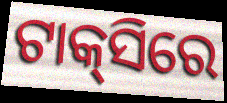
ଟାକ୍‌ସିରେ